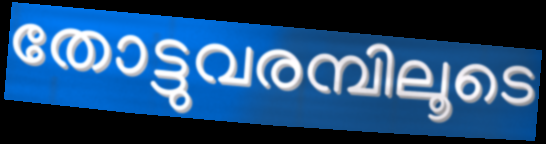
തോട്ടുവരമ്പിലൂടെ